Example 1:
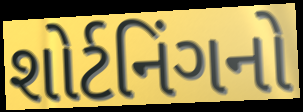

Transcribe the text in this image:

શોર્ટનિંગનો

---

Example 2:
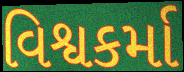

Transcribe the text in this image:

વિશ્વકર્મા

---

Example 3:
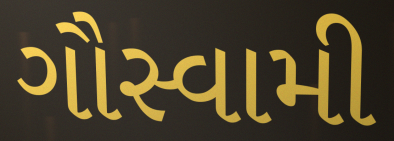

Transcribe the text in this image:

ગૌસ્વામી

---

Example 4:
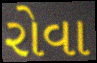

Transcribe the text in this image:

રોવા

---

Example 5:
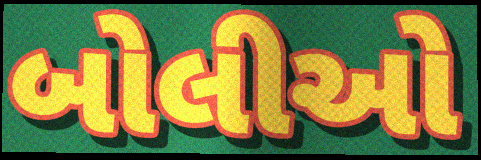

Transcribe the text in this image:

બોલીઓ